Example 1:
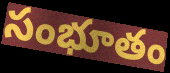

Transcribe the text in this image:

సంభూతం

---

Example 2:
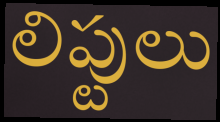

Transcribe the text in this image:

లిప్టులు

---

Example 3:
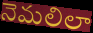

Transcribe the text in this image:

నెమలిలా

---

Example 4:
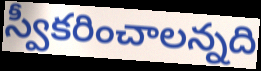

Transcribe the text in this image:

స్వీకరించాలన్నది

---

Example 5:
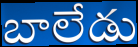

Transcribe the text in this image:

బాలేడు